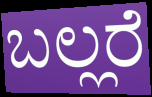
ಬಲ್ಲರೆ